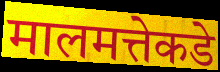
मालमत्तेकडे